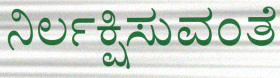
ನಿರ್ಲಕ್ಷಿಸುವಂತೆ